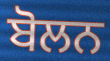
ਬੋਲਨ